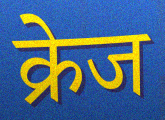
क्रेज